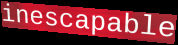
inescapable